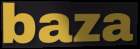
baza